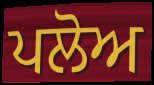
ਪਲੋਅ